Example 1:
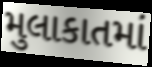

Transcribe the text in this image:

મુલાકાતમાં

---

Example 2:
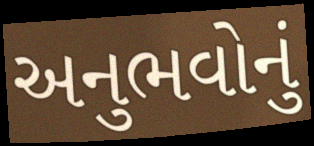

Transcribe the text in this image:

અનુભવોનું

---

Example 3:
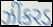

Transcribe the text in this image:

ઝીંકરડ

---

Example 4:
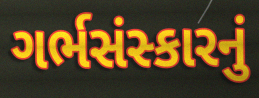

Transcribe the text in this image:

ગર્ભસંસ્કારનું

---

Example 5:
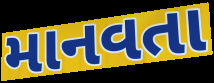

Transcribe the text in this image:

માનવતા